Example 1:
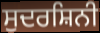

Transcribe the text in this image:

ਸੁਦਰਸ਼ਿਨੀ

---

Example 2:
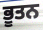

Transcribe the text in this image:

ਭੂਤਨ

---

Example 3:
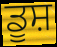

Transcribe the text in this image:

ਡੂਸ਼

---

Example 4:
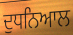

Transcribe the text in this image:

ਦੁਧਨਿਆਲ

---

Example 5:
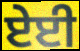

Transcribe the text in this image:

ਏਈ